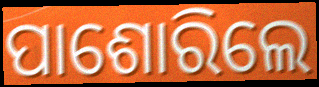
ପାଶୋରିଲେ